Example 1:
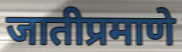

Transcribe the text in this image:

जातीप्रमाणे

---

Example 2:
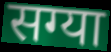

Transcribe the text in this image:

सग्या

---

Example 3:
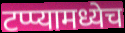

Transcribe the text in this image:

टप्प्यामध्येच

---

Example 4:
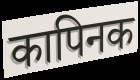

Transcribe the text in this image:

कापिनक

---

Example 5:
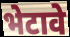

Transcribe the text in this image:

भेटावे